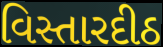
વિસ્તારદીઠ